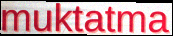
muktatma